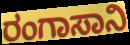
ರಂಗಾಸಾನಿ